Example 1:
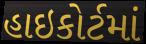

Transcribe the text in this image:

હાઇકોર્ટમાં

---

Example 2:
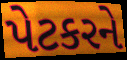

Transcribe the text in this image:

પેટકરને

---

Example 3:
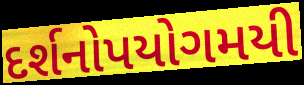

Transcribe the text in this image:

દર્શનોપયોગમયી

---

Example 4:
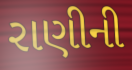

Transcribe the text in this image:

રાણીની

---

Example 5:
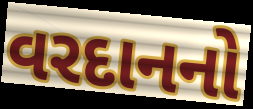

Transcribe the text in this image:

વરદાનનો